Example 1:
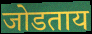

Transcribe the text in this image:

जोडताय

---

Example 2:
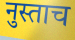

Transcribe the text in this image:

नुस्ताच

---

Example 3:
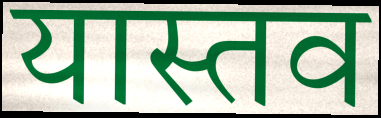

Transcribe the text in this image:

यास्तव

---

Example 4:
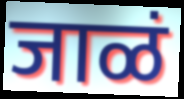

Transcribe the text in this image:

जाळं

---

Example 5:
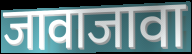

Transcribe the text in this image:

जावाजावा